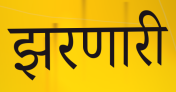
झरणारी